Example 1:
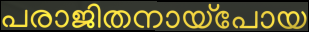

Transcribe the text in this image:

പരാജിതനായ്പോയ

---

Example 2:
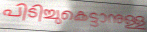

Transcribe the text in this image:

പിടിച്ചുകെട്ടാനുള്ള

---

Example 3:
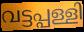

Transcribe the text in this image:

വട്ടപ്പള്ളി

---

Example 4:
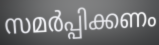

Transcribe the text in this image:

സമർപ്പിക്കണം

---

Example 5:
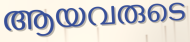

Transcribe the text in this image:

ആയവരുടെ